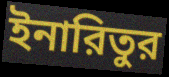
ইনারিতুর